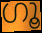
ഗൂ